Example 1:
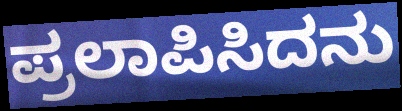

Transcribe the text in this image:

ಪ್ರಲಾಪಿಸಿದನು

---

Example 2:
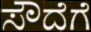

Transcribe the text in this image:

ಸೌದೆಗೆ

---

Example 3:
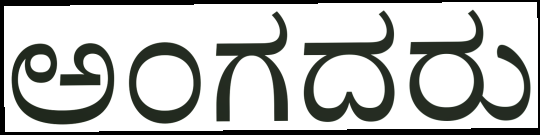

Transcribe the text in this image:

ಅಂಗದರು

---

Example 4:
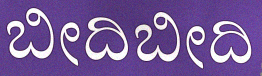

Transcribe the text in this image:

ಬೀದಿಬೀದಿ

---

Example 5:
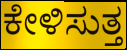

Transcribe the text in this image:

ಕೇಳಿಸುತ್ತ